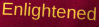
Enlightened